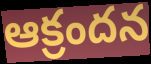
ఆక్రందన